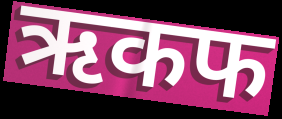
ऋकफ